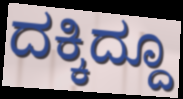
ದಕ್ಕಿದ್ದೂ